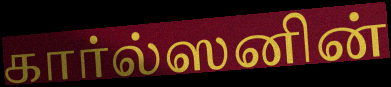
கார்ல்ஸனின்